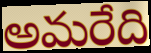
అమరేది